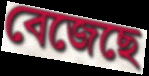
বেজেছে